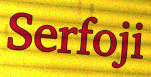
Serfoji